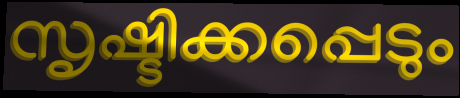
സൃഷ്ടിക്കപ്പെടും